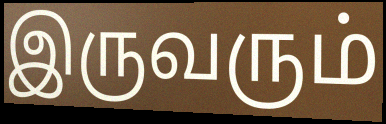
இருவரும்